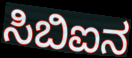
ಸಿಬಿಐನ